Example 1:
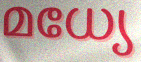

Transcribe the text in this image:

മധ്യേ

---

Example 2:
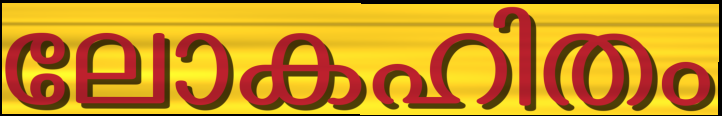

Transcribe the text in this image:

ലോകഹിതം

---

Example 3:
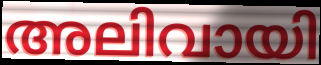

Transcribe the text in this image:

അലിവായി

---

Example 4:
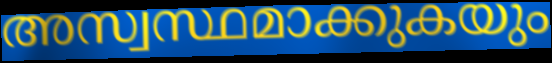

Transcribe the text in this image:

അസ്വസ്ഥമാക്കുകയും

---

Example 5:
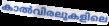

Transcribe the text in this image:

കാൽവിരലുകളിലെ